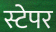
स्टेपर